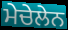
ਮੇਚੇਲੇਨ